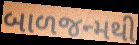
બાળજન્મથી